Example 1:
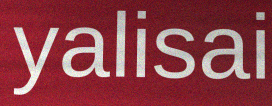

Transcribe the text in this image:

yalisai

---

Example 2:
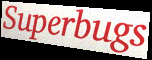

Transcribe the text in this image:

Superbugs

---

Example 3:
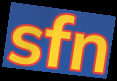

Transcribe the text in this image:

sfn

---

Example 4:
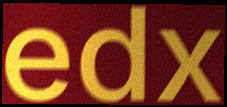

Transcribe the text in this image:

edx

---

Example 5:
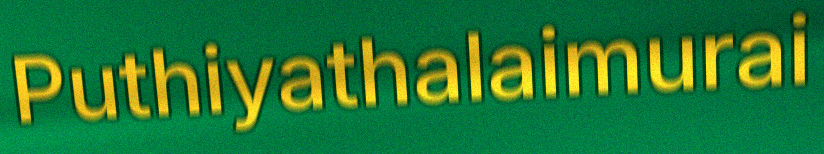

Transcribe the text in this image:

Puthiyathalaimurai